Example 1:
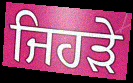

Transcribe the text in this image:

ਜਿਹਡ਼ੇ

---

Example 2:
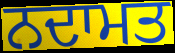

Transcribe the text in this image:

ਨਦਾਮਤ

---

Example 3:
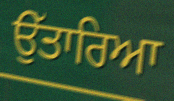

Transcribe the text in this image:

ਉੱਤਾਰਿਆ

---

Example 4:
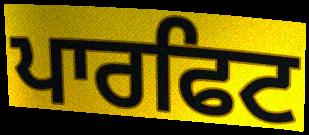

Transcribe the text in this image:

ਪਾਰਫਿਟ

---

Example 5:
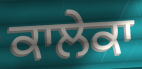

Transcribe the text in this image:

ਕਾਲੇਕਾ